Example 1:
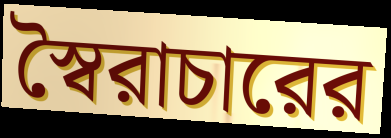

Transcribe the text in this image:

স্বৈরাচারের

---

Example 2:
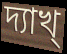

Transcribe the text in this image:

দ্যাখ্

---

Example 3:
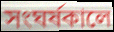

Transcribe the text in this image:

সংঘর্ষকালে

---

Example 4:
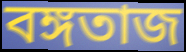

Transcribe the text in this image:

বঙ্গতাজ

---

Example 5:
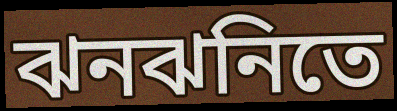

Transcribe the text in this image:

ঝনঝনিতে